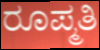
ರೂಪ್ಮತಿ